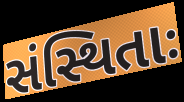
સંસ્થિતાઃ